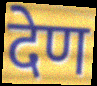
देण